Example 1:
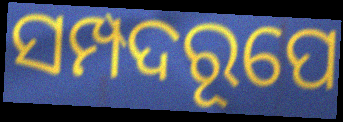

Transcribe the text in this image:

ସମ୍ପଦରୂପେ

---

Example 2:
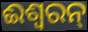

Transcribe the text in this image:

ଈଶ୍ୱରନ୍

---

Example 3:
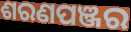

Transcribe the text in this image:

ଶରଣପଞ୍ଜର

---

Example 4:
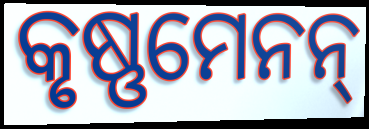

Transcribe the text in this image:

କୃଷ୍ଣମେନନ୍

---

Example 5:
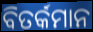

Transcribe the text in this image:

ବିତର୍କମାନ